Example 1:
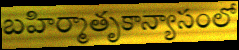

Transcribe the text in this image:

బహిర్మాతృకాన్యాసంలో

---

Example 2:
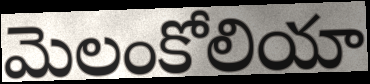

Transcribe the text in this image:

మెలంకోలియా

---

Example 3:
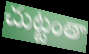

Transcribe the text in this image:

చుట్టంతా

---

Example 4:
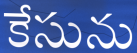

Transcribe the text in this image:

కేసును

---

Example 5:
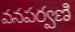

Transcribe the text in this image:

వనపర్వణి